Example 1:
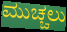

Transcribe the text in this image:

ಮುಚ್ಚಲು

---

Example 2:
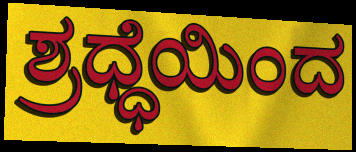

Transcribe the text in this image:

ಶ್ರಧ್ಧೆಯಿಂದ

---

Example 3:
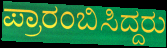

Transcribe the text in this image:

ಪ್ರಾರಂಬಿಸಿದ್ದರು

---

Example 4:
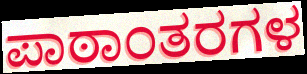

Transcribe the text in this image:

ಪಾಠಾಂತರಗಳ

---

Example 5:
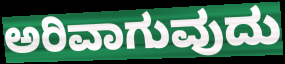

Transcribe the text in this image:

ಅರಿವಾಗುವುದು